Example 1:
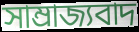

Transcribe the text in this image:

সাম্রাজ্যবাদ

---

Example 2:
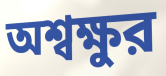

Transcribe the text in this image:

অশ্বক্ষুর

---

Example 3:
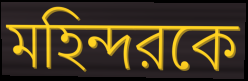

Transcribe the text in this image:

মহিন্দরকে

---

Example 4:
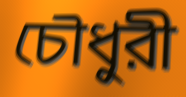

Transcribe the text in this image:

চৌধুরী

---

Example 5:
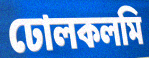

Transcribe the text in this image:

ঢোলকলমি